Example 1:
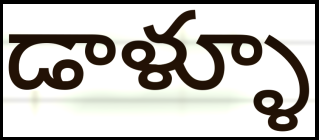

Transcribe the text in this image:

డాళ్ళూ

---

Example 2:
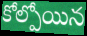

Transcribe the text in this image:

కోల్పోయిన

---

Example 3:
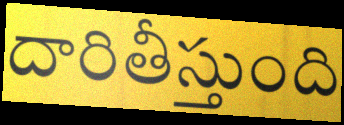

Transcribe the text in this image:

దారితీస్తుంది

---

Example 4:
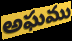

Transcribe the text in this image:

అఘము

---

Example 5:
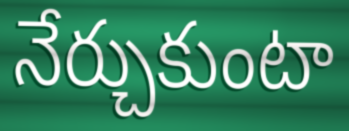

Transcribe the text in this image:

నేర్చుకుంటా